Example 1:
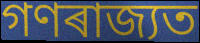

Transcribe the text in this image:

গণৰাজ্যত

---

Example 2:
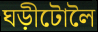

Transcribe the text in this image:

ঘড়ীটোলৈ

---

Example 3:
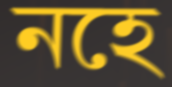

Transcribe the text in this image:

নহে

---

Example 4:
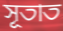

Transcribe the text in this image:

সূতাত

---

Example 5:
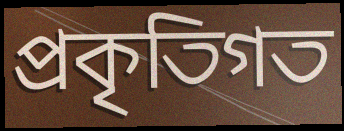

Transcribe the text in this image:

প্ৰকৃতিগত